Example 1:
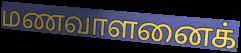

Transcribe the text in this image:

மணவாளனைக்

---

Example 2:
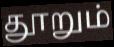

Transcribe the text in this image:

தூறும்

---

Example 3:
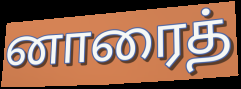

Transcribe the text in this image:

னாரைத்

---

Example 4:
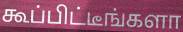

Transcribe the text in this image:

கூப்பிட்டீங்களா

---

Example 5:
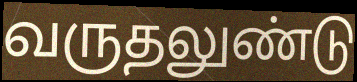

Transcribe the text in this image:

வருதலுண்டு